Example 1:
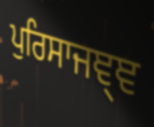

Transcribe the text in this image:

ਪੁਰਿਸਾਜਞ੍ਞ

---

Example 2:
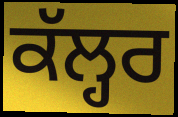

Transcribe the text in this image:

ਕੱਲ੍ਹਰ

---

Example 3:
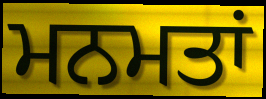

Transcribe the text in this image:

ਮਨਮਤਾਂ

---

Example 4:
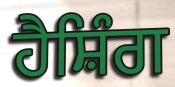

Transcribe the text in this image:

ਹੈਸ਼ਿੰਗ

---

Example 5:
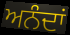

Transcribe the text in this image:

ਅਨੰਦਾਂ